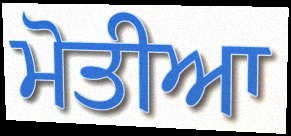
ਮੋਤੀਆ